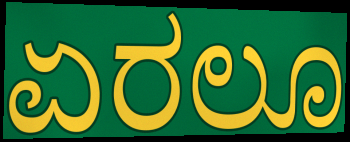
ಏರಲೂ